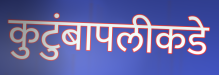
कुटुंबापलीकडे